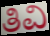
ತಿವಿ